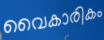
വൈകാരികം